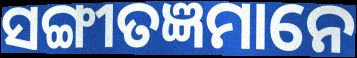
ସଙ୍ଗୀତଜ୍ଞମାନେ